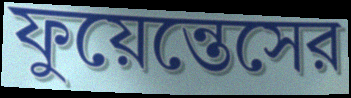
ফুয়েন্তেসের